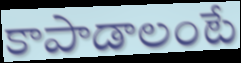
కాపాడాలంటే